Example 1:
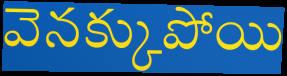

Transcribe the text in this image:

వెనక్కుపోయి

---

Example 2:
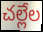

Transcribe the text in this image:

చల్లేల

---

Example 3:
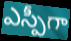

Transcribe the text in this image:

ఎస్పీగా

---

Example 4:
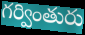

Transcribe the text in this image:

గర్వింతురు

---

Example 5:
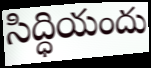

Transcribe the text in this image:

సిద్ధియందు